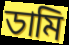
ডামি